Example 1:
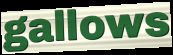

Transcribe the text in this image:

gallows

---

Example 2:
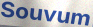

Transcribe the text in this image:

Souvum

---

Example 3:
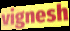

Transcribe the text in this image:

vignesh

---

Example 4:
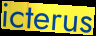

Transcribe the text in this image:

icterus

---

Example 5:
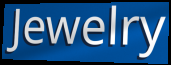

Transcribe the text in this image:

Jewelry